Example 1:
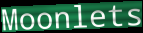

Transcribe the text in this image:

Moonlets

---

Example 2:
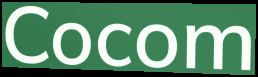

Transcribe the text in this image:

Cocom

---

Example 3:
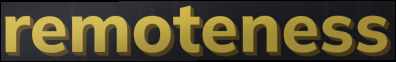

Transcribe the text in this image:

remoteness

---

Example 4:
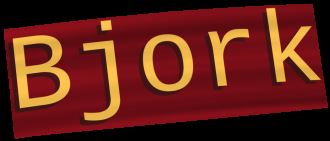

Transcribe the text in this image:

Bjork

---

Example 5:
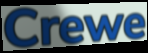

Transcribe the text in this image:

Crewe